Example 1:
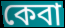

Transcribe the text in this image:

কেবা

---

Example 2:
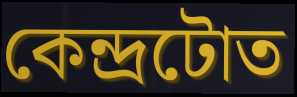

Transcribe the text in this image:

কেন্দ্ৰটোত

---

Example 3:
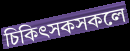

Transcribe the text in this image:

চিকিৎসকসকলে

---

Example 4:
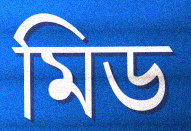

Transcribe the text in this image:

মিড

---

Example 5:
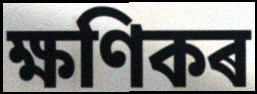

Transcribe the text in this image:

ক্ষণিকৰ